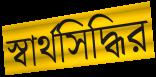
স্বার্থসিদ্ধির